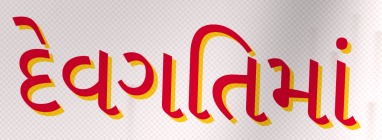
દેવગતિમાં